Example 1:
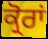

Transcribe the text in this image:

ਕ੍ਰੋਰਾਂ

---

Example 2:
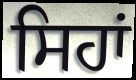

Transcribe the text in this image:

ਸਿਹਾਂ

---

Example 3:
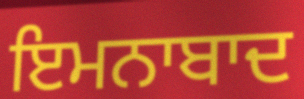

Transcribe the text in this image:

ਇਮਨਾਬਾਦ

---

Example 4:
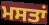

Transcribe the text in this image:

ਮਸਤਾਂ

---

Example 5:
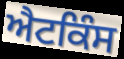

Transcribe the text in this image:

ਐਟਕਿੰਸ